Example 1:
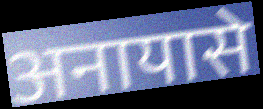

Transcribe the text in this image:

अनायासे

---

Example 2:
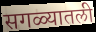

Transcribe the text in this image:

सगळ्यातली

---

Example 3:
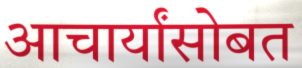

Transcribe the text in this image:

आचार्यांसोबत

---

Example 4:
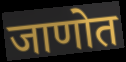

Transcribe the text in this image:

जाणोत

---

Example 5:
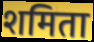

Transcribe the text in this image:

शमिता